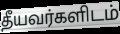
தீயவர்களிடம்